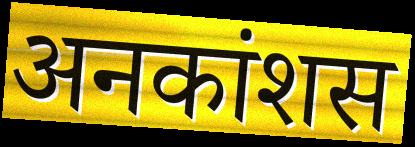
अनकांशस